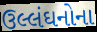
ઉલ્લંઘનોના